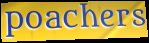
poachers